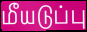
மீயடுப்பு